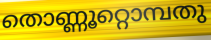
തൊണ്ണൂറ്റൊമ്പതു